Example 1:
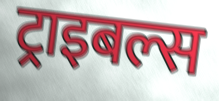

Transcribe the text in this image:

ट्राइबल्स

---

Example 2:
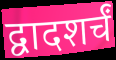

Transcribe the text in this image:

द्वादशर्चं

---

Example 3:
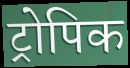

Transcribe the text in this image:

ट्रोपिक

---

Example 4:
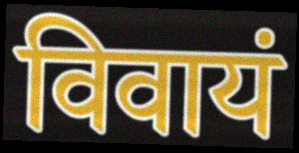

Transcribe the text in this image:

विवायं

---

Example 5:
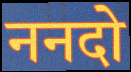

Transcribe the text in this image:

ननदो